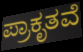
ಪ್ರಾಕೃತವೆ